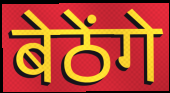
बेठेंगे